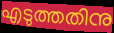
എടുത്തതിനു